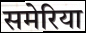
समेरिया